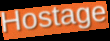
Hostage